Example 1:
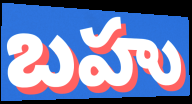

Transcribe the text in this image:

బహు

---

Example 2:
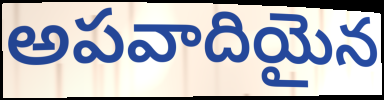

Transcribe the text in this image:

అపవాదియైన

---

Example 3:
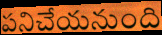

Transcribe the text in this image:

పనిచేయనుంది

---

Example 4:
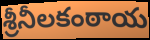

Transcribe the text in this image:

శ్రీనీలకంఠాయ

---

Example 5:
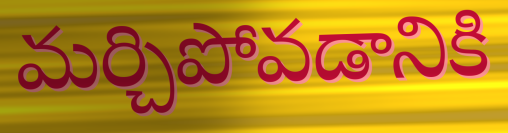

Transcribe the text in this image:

మర్చిపోవడానికి